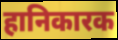
हानिकारक